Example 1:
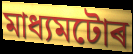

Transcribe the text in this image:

মাধ্যমটোৰ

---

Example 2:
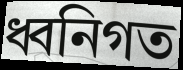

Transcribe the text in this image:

ধ্বনিগত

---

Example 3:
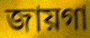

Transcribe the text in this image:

জায়গা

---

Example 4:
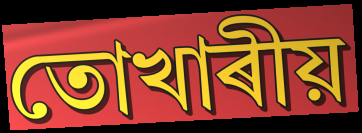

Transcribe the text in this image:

তোখাৰীয়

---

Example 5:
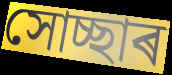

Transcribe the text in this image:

সোচ্ছাৰ